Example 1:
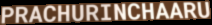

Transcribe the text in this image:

PRACHURINCHAARU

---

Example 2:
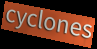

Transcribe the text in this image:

cyclones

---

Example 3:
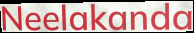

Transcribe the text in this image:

Neelakanda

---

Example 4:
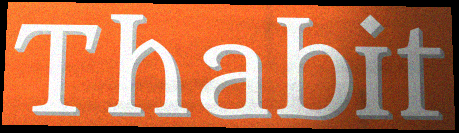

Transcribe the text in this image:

Thabit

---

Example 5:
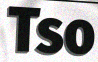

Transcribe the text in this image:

Tso